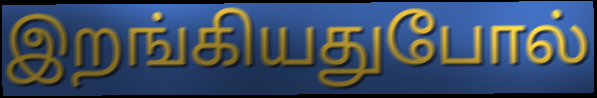
இறங்கியதுபோல்